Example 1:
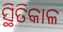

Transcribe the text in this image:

ସ୍ଥିତିକାଳ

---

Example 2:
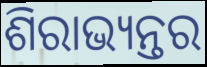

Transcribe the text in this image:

ଶିରାଭ୍ୟନ୍ତର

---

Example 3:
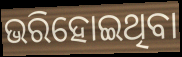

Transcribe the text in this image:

ଭରିହୋଇଥିବା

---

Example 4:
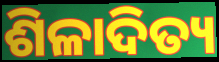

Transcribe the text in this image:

ଶିଳାଦିତ୍ୟ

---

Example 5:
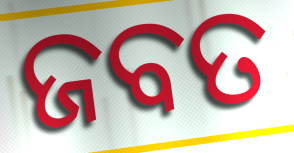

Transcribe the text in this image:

ଜବତ